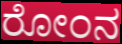
ರೋಂನ